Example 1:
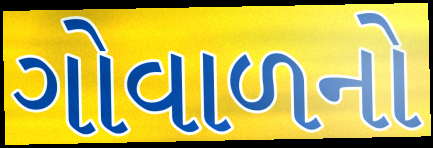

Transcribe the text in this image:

ગોવાળનો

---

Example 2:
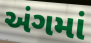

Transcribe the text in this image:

અંગમાં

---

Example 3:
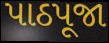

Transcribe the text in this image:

પાઠપૂજા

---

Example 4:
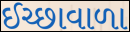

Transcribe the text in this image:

ઈચ્છાવાળા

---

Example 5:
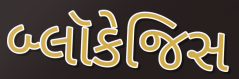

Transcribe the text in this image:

બ્લૉકેજિસ